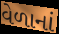
વેળાનાં